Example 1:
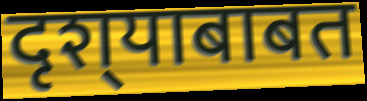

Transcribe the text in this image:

दृश्याबाबत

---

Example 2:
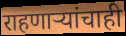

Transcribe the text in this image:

राहणाऱ्यांचाही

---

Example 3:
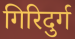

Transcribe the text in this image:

गिरिदुर्ग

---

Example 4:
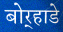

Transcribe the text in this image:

बोर्हाडे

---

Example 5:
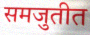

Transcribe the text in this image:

समजुतीत